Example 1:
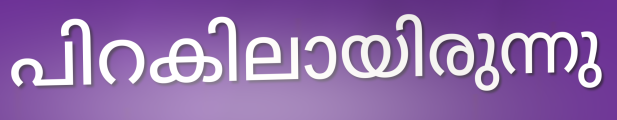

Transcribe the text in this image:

പിറകിലായിരുന്നു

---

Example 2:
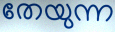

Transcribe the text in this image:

തേയുന്ന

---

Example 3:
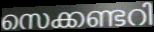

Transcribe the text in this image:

സെക്കണ്ടറി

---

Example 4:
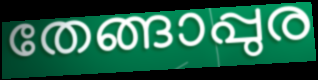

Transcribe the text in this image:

തേങ്ങാപ്പുര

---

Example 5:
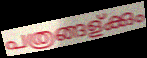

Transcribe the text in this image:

പത്രങ്ങള്ക്കും